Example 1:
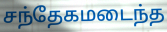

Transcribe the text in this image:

சந்தேகமடைந்த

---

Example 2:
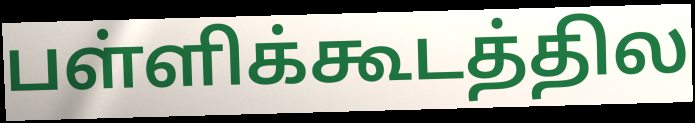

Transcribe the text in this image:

பள்ளிக்கூடத்தில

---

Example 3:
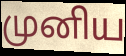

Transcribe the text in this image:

முனிய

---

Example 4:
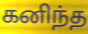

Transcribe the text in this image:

கனிந்த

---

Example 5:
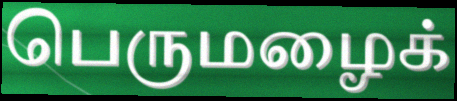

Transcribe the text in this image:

பெருமழைக்